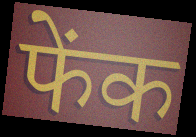
फेंक